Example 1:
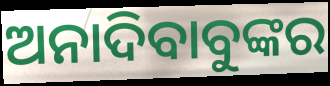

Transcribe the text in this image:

ଅନାଦିବାବୁଙ୍କର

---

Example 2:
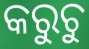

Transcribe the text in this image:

କରୁଚୁ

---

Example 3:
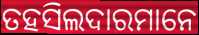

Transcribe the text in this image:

ତହସିଲଦାରମାନେ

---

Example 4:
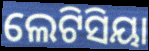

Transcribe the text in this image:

ଲେଟିସିୟା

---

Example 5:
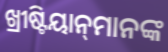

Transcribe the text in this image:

ଖ୍ରୀଷ୍ଟିୟାନ୍‌ମାନଙ୍କ